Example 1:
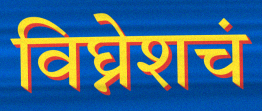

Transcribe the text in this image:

विघ्नेशचं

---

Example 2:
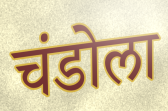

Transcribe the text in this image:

चंडोला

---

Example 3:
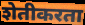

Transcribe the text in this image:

शेतीकरता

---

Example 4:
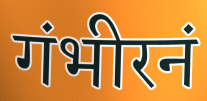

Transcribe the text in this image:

गंभीरनं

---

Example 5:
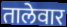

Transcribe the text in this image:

तालेवार